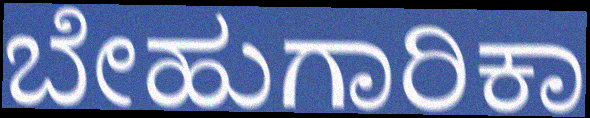
ಬೇಹುಗಾರಿಕಾ